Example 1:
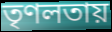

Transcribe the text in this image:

তৃণলতায়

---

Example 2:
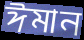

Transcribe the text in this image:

ঈমান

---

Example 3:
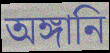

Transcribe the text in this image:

অঙ্গানি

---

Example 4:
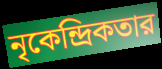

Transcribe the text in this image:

নৃকেন্দ্রিকতার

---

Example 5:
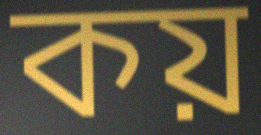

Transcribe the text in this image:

কয়